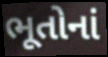
ભૂતોનાં